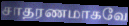
சாதரணமாகவே